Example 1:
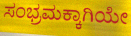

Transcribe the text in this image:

ಸಂಭ್ರಮಕ್ಕಾಗಿಯೇ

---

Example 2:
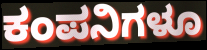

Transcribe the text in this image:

ಕಂಪನಿಗಳೂ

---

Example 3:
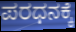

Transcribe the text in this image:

ಪರಧನಕ್ಕೆ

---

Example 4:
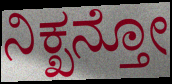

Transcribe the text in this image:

ನಿಕ್ಖನ್ತೋ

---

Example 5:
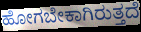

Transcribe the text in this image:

ಹೋಗಬೇಕಾಗಿರುತ್ತದೆ